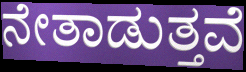
ನೇತಾಡುತ್ತವೆ